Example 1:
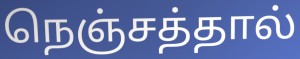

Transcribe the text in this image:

நெஞ்சத்தால்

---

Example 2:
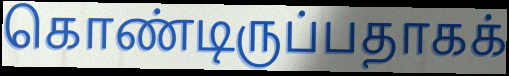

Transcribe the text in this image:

கொண்டிருப்பதாகக்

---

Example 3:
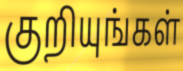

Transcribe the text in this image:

குறியுங்கள்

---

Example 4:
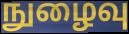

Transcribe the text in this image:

நுழைவு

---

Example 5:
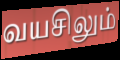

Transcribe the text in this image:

வயசிலும்